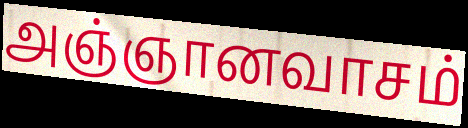
அஞ்ஞானவாசம்